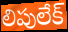
లిపులేక్